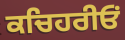
ਕਚਿਹਰੀਓਂ